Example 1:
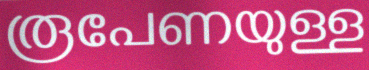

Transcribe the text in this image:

രൂപേണയുള്ള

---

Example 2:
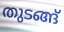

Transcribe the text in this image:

തുടങ്ങ്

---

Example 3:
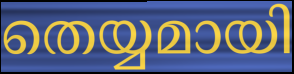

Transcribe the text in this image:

തെയ്യമായി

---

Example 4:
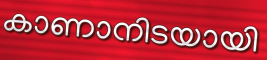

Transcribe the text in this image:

കാണാനിടയായി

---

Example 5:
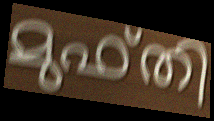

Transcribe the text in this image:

മുഫ്തി